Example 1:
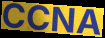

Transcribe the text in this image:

CCNA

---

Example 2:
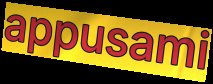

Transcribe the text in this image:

appusami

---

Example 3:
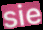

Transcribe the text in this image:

sie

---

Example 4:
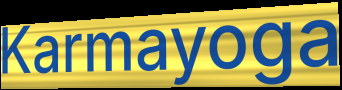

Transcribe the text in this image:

Karmayoga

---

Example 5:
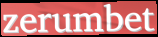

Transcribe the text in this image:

zerumbet